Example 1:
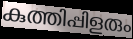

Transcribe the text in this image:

കുത്തിപ്പിളരും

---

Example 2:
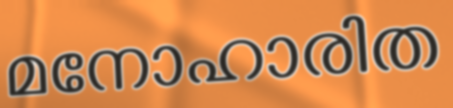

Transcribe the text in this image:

മനോഹാരിത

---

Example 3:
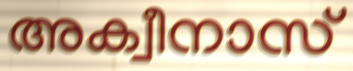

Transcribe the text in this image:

അക്വീനാസ്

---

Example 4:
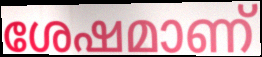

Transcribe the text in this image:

ശേഷമാണ്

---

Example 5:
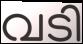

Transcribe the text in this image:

വടി